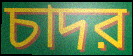
চাদর